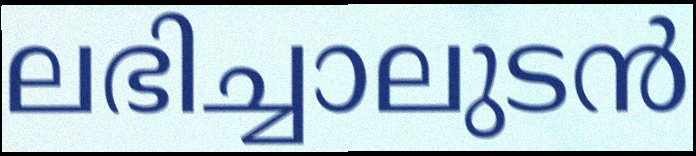
ലഭിച്ചാലുടൻ